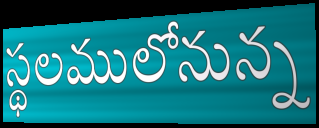
స్థలములోనున్న